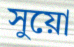
সুয়ো